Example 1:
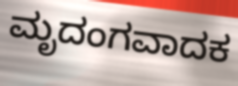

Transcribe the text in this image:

ಮೃದಂಗವಾದಕ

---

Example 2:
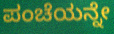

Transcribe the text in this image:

ಪಂಚೆಯನ್ನೇ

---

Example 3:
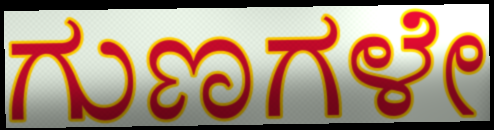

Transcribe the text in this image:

ಗುಣಗಳೇ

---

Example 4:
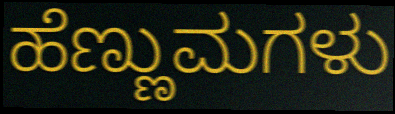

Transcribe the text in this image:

ಹೆಣ್ಣುಮಗಳು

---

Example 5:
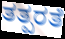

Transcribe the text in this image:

ತತ್ಪರತೆ